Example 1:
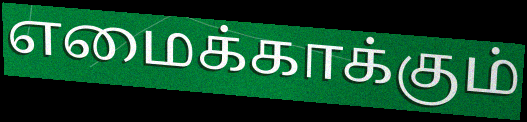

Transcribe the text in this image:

எமைக்காக்கும்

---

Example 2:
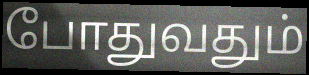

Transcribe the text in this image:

போதுவதும்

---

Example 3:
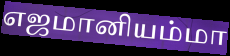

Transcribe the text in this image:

எஜமானியம்மா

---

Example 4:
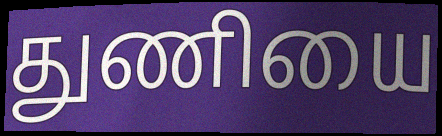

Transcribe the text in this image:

துணியை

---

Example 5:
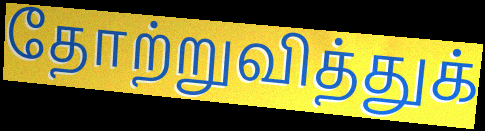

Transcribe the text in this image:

தோற்றுவித்துக்